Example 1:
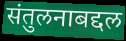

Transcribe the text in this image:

संतुलनाबद्दल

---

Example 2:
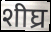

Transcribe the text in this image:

शीघ्र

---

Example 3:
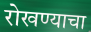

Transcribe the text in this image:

रोखण्याचा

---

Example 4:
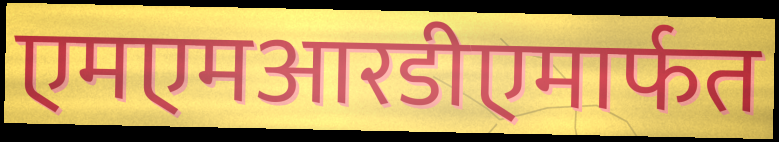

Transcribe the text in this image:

एमएमआरडीएमार्फत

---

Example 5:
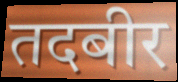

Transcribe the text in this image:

तदबीर